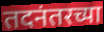
तदनंतरच्या